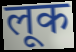
लूक